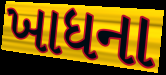
ખાધના